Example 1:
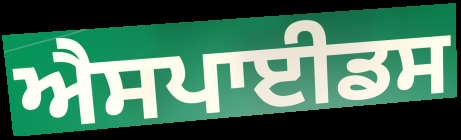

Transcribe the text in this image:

ਐਸਪਾਈਡਸ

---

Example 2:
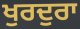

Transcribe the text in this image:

ਖੁਰਦੁਰਾ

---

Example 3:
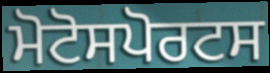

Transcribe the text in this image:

ਮੋਟੋਸਪੋਰਟਸ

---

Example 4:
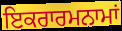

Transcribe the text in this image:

ਇਕਰਾਰਮਨਾਮਾਂ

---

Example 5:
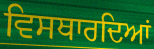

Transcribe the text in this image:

ਵਿਸਥਾਰਦਿਆਂ